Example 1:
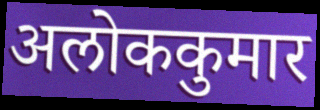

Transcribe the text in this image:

अलोककुमार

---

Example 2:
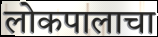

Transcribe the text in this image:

लोकपालाचा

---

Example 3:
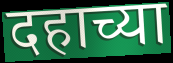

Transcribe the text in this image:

दहाच्या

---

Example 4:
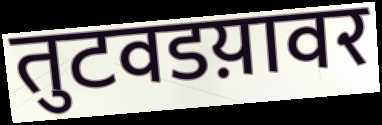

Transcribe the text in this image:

तुटवडय़ावर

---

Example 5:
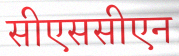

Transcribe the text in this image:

सीएससीएन